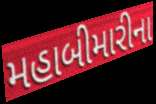
મહાબીમારીના